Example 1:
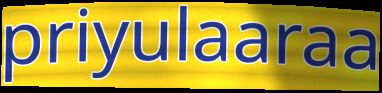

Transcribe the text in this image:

priyulaaraa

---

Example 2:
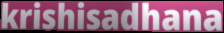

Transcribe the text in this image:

krishisadhana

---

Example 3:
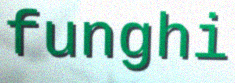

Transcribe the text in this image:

funghi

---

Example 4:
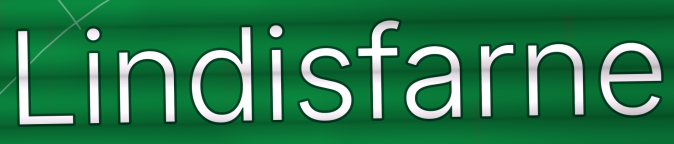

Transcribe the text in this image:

Lindisfarne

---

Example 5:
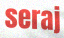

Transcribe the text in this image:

seraj